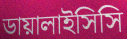
ডায়ালাইসিসি